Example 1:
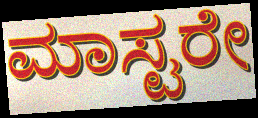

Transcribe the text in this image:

ಮಾಸ್ಟರೇ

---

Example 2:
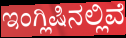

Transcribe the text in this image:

ಇಂಗ್ಲಿಷಿನಲ್ಲಿವೆ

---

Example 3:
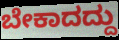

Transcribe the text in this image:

ಬೇಕಾದದ್ದು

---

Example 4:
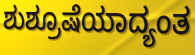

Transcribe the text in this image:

ಶುಶ್ರೂಷೆಯಾದ್ಯಂತ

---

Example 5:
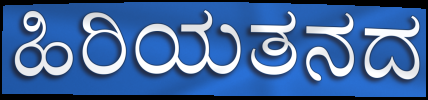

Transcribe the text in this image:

ಹಿರಿಯತನದ